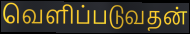
வெளிப்படுவதன்